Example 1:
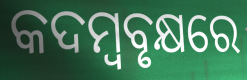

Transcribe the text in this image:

କଦମ୍ୱବୃକ୍ଷରେ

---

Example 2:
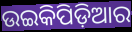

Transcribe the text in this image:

ଉଇକିପିଡ଼ିଆର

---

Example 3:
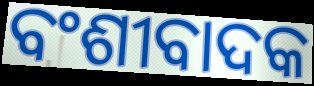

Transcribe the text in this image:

ବଂଶୀବାଦକ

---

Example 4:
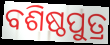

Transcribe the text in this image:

ବଶିଷ୍ଠପୁତ୍ର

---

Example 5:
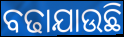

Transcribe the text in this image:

ବଢାଯାଉଛି